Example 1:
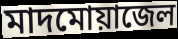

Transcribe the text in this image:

মাদমোয়াজেল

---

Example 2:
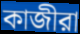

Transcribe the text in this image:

কাজীরা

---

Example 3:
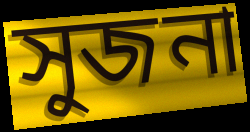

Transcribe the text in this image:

সুজনা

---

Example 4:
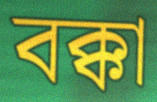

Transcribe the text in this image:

বক্কা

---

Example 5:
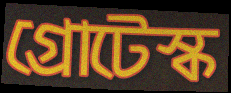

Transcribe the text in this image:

গ্রোটেস্ক